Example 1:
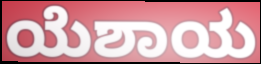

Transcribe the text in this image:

ಯೆಶಾಯ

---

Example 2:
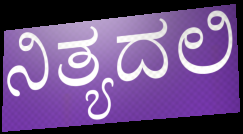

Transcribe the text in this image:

ನಿತ್ಯದಲಿ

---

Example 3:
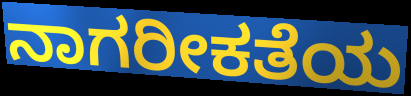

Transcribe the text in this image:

ನಾಗರೀಕತೆಯ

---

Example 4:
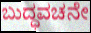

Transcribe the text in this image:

ಬುದ್ಧವಚನೇ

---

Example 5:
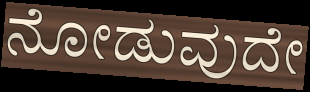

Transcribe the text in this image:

ನೋಡುವುದೇ